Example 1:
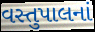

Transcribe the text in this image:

વસ્તુપાલનાં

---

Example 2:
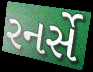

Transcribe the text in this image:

રનર્સે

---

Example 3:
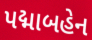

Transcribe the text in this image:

પદ્માબહેન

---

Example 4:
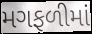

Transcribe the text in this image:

મગફળીમાં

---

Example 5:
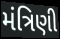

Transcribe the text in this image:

મંત્રિણી